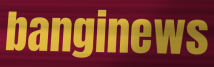
banginews